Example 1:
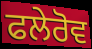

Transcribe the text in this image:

ਫਲੇਰੋਵ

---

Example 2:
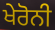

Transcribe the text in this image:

ਖੇਰੋਨੀ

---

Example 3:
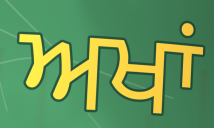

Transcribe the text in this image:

ਅਖਾਂ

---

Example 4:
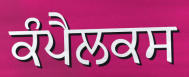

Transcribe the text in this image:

ਕੰਪੈਲਕਸ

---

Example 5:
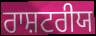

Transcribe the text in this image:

ਰਾਸ਼ਟਰੀਯ